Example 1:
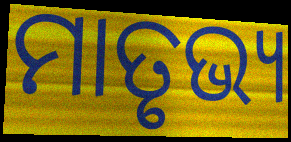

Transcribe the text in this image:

ମାତୃଭ୍ୟ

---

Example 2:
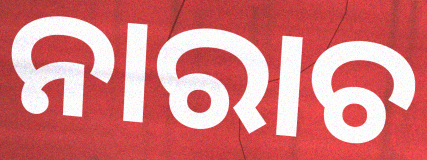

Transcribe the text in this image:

ନାରାଚ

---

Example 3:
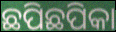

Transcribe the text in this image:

ଛପିଛପିକା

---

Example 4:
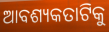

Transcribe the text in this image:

ଆବଶ୍ୟକତାଟିକୁ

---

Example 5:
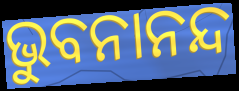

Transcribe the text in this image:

ଭୁବନାନନ୍ଦ